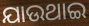
ଯାଉଥାଇ